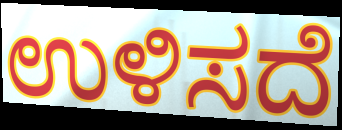
ಉಳಿಸದೆ